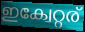
ഇക്വേറ്റര്